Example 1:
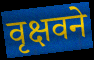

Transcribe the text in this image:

वृक्षवने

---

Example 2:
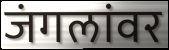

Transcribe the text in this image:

जंगलांवर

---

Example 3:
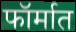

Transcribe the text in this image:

फॉर्मात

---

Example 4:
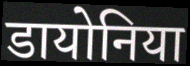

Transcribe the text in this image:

डायोनिया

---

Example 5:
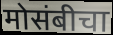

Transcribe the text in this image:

मोसंबीचा